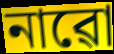
নাৱো